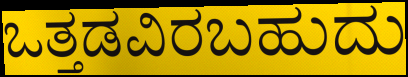
ಒತ್ತಡವಿರಬಹುದು